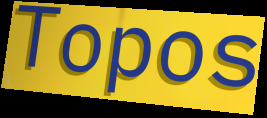
Topos